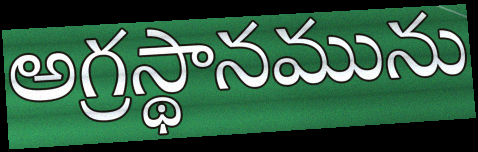
అగ్రస్థానమును